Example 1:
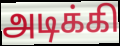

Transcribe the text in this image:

அடிக்கி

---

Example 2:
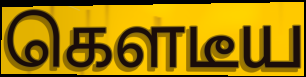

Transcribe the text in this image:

கௌடீய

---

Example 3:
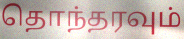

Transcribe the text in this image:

தொந்தரவும்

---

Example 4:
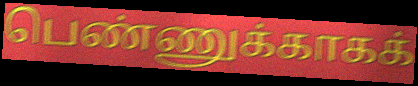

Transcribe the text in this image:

பெண்ணுக்காகக்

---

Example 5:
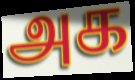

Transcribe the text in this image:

அக